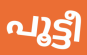
പൂട്ടീ